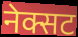
नेक्सट